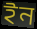
ইন